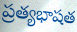
ప్రత్యభాషత